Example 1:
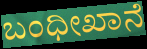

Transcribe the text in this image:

ಬಂಧೀಖಾನೆ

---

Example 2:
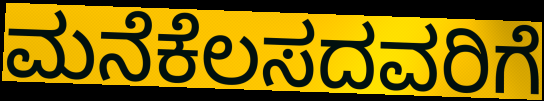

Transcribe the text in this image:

ಮನೆಕೆಲಸದವರಿಗೆ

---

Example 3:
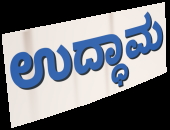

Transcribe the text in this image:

ಉದ್ಧಾಮ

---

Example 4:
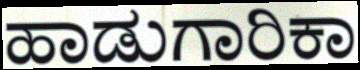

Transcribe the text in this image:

ಹಾಡುಗಾರಿಕಾ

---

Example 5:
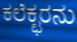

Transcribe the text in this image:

ಕಲೆಕ್ಟರನು